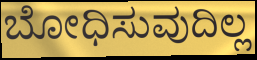
ಬೋಧಿಸುವುದಿಲ್ಲ